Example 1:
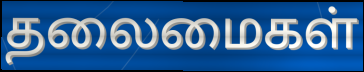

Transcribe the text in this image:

தலைமைகள்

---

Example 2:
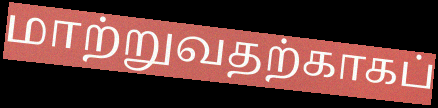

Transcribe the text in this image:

மாற்றுவதற்காகப்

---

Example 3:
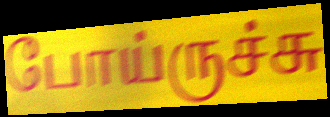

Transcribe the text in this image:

போய்ருச்சு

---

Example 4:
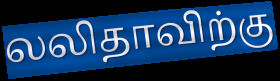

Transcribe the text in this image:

லலிதாவிற்கு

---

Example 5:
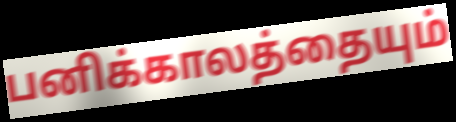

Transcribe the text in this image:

பனிக்காலத்தையும்